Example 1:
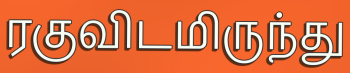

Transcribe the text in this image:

ரகுவிடமிருந்து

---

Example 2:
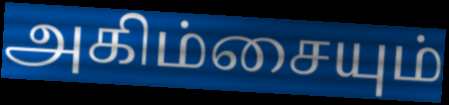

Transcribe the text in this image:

அகிம்சையும்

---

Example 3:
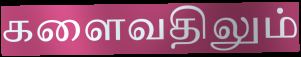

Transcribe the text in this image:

களைவதிலும்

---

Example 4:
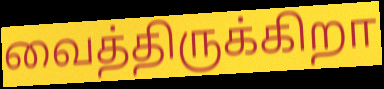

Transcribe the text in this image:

வைத்திருக்கிறா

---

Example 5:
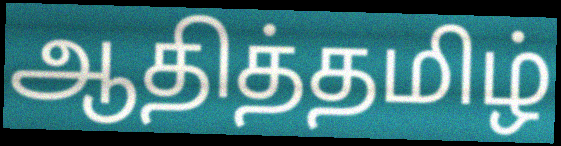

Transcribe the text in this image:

ஆதித்தமிழ்